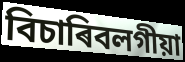
বিচাৰিবলগীয়া